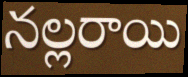
నల్లరాయి